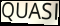
QUASI